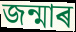
জন্মাৰ